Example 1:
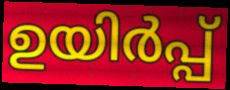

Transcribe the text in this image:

ഉയിർപ്പ്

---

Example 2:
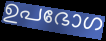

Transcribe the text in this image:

ഉപഭോഗ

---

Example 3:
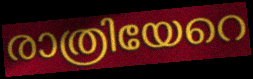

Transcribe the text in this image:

രാത്രിയേറെ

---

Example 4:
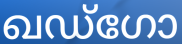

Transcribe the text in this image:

ഖഡ്ഗോ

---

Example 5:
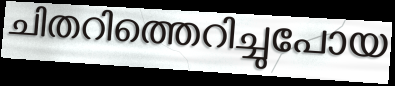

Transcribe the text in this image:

ചിതറിത്തെറിച്ചുപോയ